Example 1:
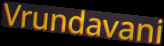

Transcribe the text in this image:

Vrundavani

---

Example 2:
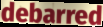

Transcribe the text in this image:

debarred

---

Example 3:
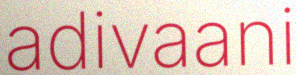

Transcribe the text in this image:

adivaani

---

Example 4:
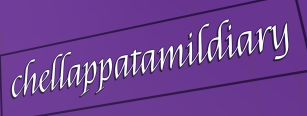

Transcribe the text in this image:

chellappatamildiary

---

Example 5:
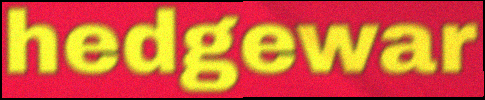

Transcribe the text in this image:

hedgewar